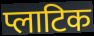
प्लाटिक